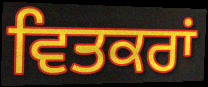
ਵਿਤਕਰਾਂ